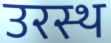
उरस्थ